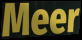
Meer